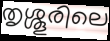
തൃശ്ശൂരിലെ